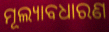
ମୂଲ୍ୟାବଧାରଣ